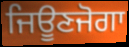
ਜਿਊਣਜੋਗਾ